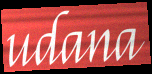
udana